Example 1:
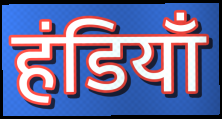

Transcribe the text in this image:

हंडियाँ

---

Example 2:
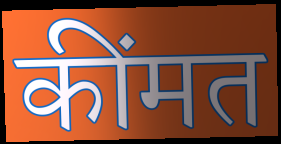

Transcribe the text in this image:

कींमत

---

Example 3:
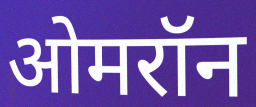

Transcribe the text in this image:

ओमरॉन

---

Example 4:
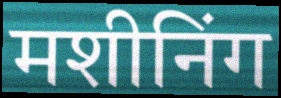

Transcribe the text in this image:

मशीनिंग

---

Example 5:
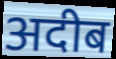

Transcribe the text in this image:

अदीब